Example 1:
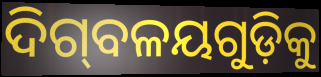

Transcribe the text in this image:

ଦିଗ୍‌ବଳୟଗୁଡ଼ିକୁ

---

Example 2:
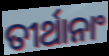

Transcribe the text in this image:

ତୀର୍ଥାନାଂ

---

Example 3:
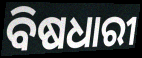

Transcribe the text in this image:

ବିଷଧାରୀ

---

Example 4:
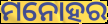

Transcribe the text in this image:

ମନୋହର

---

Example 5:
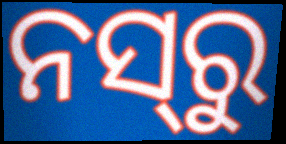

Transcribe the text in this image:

ନସ୍‍ରୁ